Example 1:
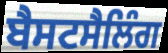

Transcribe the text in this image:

ਬੈਸਟਸੈਲਿੰਗ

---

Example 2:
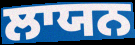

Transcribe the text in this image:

ਲਾਯਨ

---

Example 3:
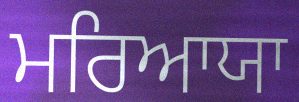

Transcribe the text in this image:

ਮਰਿਆਯਾ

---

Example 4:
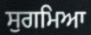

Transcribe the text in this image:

ਸੁਗਮਿਆ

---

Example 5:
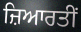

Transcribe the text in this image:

ਜ਼ਿਆਰਤੀਂ